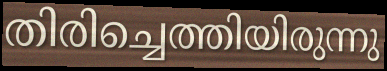
തിരിച്ചെത്തിയിരുന്നു